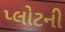
પ્લોટની